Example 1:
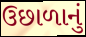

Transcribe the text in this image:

ઉછાળાનું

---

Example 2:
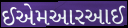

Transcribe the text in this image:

ઈએમઆરઆઈ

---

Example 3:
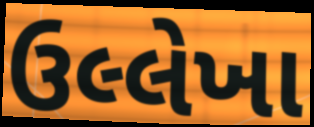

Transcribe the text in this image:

ઉલ્લેખા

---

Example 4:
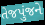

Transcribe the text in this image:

તેજપુંજને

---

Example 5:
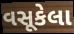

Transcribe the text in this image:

વસૂકેલા